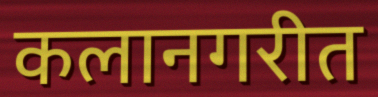
कलानगरीत